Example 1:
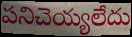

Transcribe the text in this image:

పనిచెయ్యలేదు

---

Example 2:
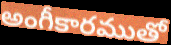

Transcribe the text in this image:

అంగీకారముతో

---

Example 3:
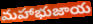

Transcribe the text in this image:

మహాభుజాయ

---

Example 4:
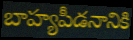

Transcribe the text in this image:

బాహ్యపీడనానికి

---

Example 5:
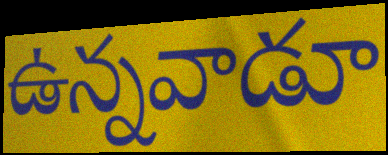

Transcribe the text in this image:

ఉన్నవాడూ